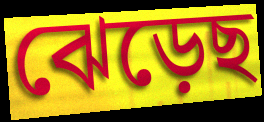
ঝেড়েছ